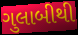
ગુલાબીથી